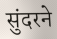
सुंदरने